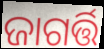
ଜାଗର୍ତ୍ତି